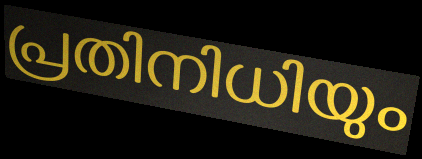
പ്രതിനിധിയും